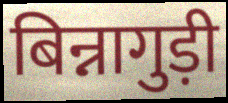
बिन्नागुड़ी